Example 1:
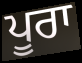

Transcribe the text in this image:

ਪੂਰਾ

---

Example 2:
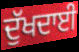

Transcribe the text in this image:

ਦੁੱਖਦਾਈ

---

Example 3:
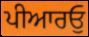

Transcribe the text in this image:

ਪੀਆਰਓੁ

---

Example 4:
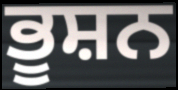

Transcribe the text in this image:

ਭੂਸ਼ਨ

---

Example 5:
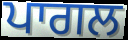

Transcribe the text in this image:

ਪਾਗਲ